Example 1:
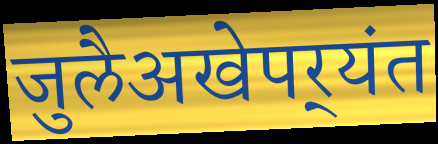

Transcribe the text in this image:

जुलैअखेपर्यंत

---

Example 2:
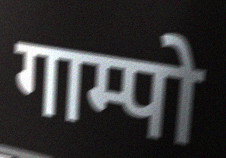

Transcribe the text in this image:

गाम्पो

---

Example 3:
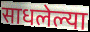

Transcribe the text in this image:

साधलेल्या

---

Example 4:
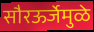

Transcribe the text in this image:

सौरऊर्जेमुळे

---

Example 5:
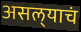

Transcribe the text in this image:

असल्याचं